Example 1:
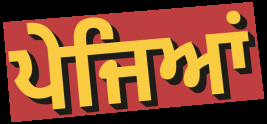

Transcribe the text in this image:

ਪੇਜਿਆਂ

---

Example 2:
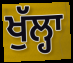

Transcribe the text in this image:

ਖੁੱਲ੍ਹਾ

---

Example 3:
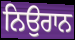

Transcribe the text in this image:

ਨਿਉਰਾਨ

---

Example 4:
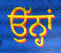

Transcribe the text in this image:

ਉੱਨ੍ਹਾਂ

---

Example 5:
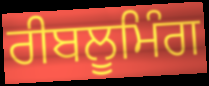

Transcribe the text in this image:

ਰੀਬਲੂਮਿੰਗ